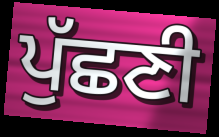
ਪੁੱਛਣੀ